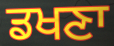
ਡਖਣਾ